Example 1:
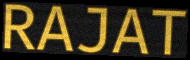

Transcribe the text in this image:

RAJAT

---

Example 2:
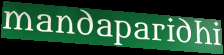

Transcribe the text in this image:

mandaparidhi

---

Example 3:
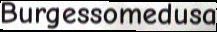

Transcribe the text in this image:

Burgessomedusa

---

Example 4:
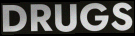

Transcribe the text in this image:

DRUGS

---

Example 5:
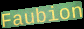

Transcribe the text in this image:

Faubion